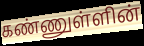
கண்ணுள்ளின்